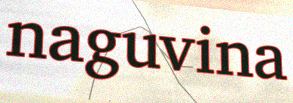
naguvina